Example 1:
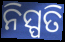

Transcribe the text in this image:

ନିସ୍ପତି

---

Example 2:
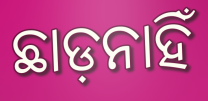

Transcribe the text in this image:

ଛାଡ଼ନାହିଁ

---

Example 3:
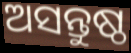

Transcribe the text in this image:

ଅସନ୍ତୁଷ୍ଠ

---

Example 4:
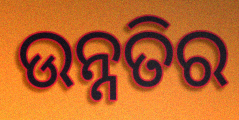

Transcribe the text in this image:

ଉନ୍ନତିର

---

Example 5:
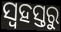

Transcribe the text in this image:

ସ୍ୱହସ୍ତରୁ